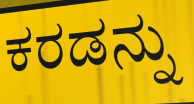
ಕರಡನ್ನು